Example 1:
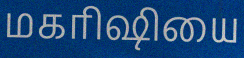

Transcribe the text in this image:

மகரிஷியை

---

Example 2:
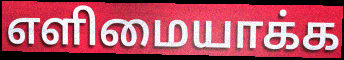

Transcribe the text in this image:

எளிமையாக்க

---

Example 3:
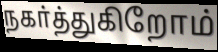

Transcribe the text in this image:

நகர்த்துகிறோம்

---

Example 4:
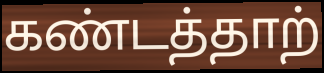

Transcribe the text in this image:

கண்டத்தாற்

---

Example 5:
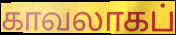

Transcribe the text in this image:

காவலாகப்